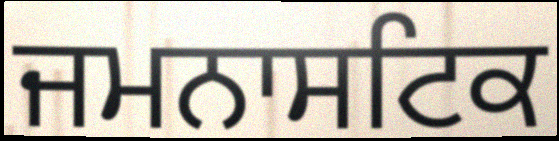
ਜਮਨਾਸਟਿਕ